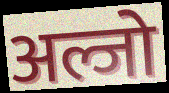
अल्जो